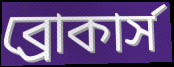
ব্রোকার্স